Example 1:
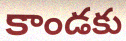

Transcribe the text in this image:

కాండకు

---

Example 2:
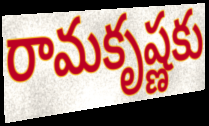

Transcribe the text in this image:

రామకృష్ణకు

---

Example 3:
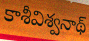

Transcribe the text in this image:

కాశీవిశ్వనాథ్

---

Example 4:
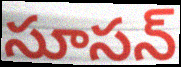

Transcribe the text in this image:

సూసన్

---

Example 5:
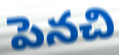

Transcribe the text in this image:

పెనచి